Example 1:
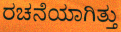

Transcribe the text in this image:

ರಚನೆಯಾಗಿತ್ತು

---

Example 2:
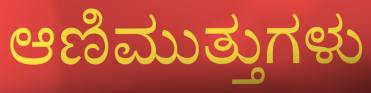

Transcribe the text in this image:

ಆಣಿಮುತ್ತುಗಳು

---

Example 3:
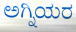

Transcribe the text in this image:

ಅಗ್ನಿಯರ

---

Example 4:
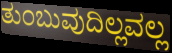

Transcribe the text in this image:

ತುಂಬುವುದಿಲ್ಲವಲ್ಲ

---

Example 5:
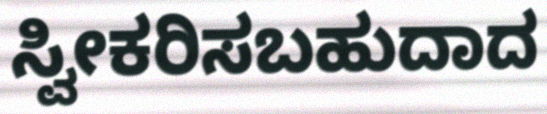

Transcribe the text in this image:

ಸ್ವೀಕರಿಸಬಹುದಾದ